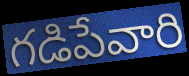
గడిపేవారి